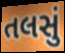
તલસું